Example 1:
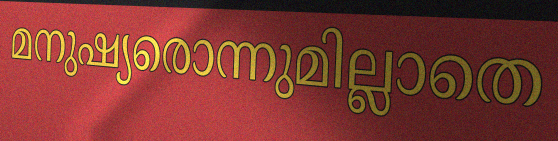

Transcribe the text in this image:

മനുഷ്യരൊന്നുമില്ലാതെ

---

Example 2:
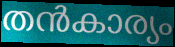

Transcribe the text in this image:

തൻകാര്യം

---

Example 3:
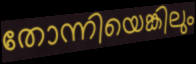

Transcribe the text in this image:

തോന്നിയെങ്കിലും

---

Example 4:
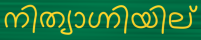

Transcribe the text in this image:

നിത്യാഗ്നിയില്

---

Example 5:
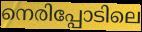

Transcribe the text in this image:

നെരിപ്പോടിലെ